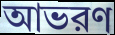
আভরণ